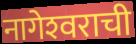
नागेश्‍वराची